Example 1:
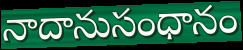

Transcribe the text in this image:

నాదానుసంధానం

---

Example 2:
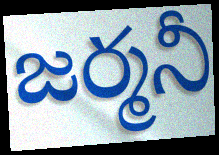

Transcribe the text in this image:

జర్మనీ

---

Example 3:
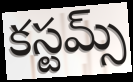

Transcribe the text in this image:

కస్టమ్స్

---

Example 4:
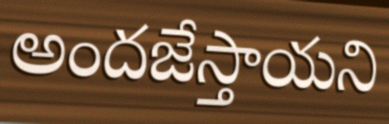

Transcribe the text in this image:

అందజేస్తాయని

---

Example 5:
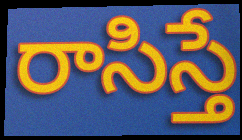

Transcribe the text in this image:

రాసిస్తే